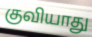
குவியாது